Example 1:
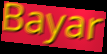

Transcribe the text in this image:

Bayar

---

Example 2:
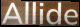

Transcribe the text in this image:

Allide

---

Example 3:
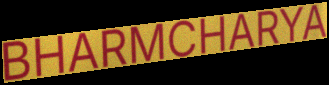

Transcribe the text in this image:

BHARMCHARYA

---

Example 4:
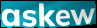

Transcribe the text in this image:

askew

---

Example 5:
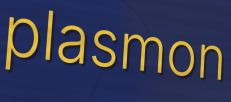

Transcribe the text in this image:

plasmon